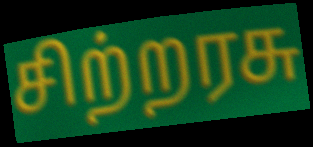
சிற்றரசு